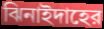
ঝিনাইদাহের